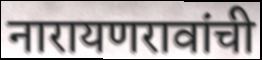
नारायणरावांची